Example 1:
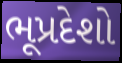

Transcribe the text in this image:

ભૂપ્રદેશો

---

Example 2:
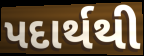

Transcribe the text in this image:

પદાર્થથી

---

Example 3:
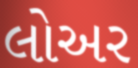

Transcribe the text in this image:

લોઅર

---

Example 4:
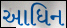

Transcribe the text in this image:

આધિન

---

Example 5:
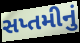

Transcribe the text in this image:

સપ્તમીનું